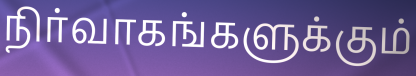
நிர்வாகங்களுக்கும்